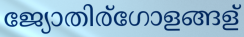
ജ്യോതിര്ഗോളങ്ങള്